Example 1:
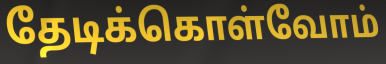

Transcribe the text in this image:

தேடிக்கொள்வோம்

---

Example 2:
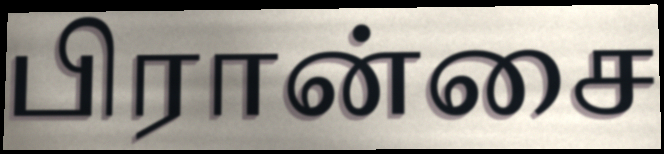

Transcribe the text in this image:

பிரான்சை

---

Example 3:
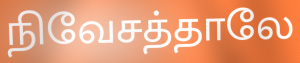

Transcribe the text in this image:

நிவேசத்தாலே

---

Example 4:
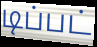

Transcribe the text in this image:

டிப்பட்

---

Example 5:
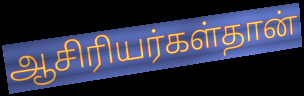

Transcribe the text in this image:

ஆசிரியர்கள்தான்